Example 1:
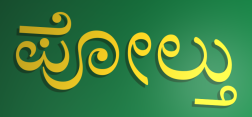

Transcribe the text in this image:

ಪೋಲ್ತು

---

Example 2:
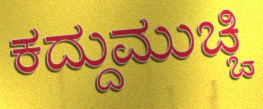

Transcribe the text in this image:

ಕದ್ದುಮುಚ್ಚಿ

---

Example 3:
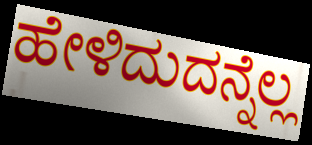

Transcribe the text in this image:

ಹೇಳಿದುದನ್ನೆಲ್ಲ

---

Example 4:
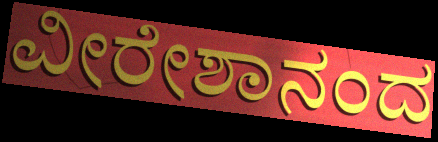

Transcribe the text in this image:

ವೀರೇಶಾನಂದ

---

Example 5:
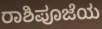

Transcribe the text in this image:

ರಾಶಿಪೂಜೆಯ